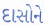
દાસોને